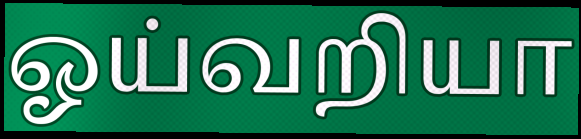
ஓய்வறியா